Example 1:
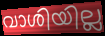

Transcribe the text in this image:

വാശിയില്ല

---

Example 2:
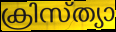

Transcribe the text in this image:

ക്രിസ്‌ത്യാ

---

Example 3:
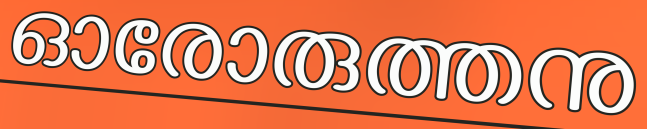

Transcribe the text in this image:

ഓരോരുത്തനു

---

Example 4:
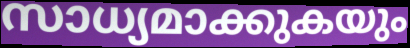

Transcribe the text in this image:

സാധ്യമാക്കുകയും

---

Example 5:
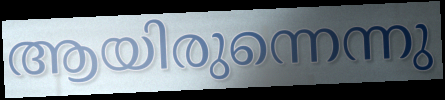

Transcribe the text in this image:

ആയിരുന്നെന്നു